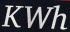
KWh